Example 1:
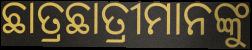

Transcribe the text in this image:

ଛାତ୍ରଛାତ୍ରୀମାନଙ୍କୁ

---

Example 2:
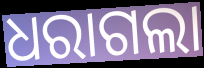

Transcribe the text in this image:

ଧରାଗଲା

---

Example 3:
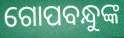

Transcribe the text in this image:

ଗୋପବନ୍ଧୁଙ୍କ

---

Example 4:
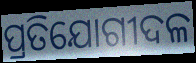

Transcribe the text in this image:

ପ୍ରତିଯୋଗୀଦଳ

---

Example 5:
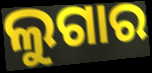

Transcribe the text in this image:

ଲୁଗାର